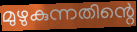
മുഴുകുന്നതിന്റെ